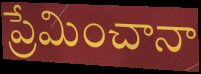
ప్రేమించానా